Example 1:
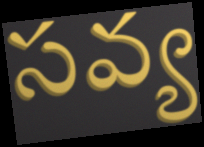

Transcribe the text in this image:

సవ్య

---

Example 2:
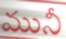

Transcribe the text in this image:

మునీ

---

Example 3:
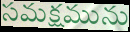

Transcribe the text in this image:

సమక్షమును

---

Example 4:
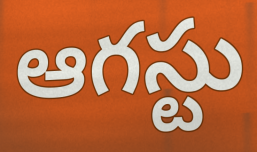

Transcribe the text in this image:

ఆగస్టు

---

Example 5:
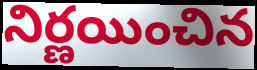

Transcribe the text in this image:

నిర్ణయించిన